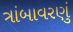
ત્રાંબાવરણું